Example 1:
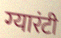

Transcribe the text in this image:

ग्‍यारंटी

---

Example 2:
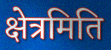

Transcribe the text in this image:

क्षेत्रमिति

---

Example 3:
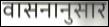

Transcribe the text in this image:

वासनानुसार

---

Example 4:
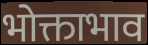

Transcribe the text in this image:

भोक्ताभाव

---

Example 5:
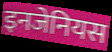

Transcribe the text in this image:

इनजेनियस